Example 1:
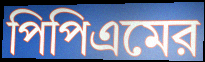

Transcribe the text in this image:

পিপিএমের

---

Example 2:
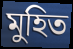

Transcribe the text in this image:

মুহিত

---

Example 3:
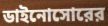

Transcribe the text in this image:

ডাইনোসোরের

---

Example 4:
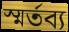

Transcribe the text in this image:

স্মর্তব্য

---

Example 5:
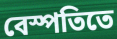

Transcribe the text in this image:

বেস্পতিতে